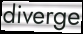
diverge